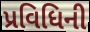
પ્રવિધિની